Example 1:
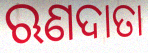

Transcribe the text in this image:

ଋଣଦାତା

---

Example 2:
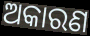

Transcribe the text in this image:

ଅକାରଣ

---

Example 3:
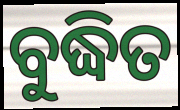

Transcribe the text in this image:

ବୁଦ୍ଧିତ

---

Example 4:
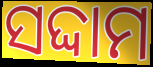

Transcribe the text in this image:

ସଦ୍ଦାମ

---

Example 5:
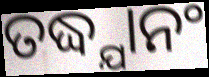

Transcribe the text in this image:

ତଦ୍ଧ୍ଯାନଂ